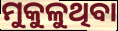
ମୁକୁଳୁଥିବା